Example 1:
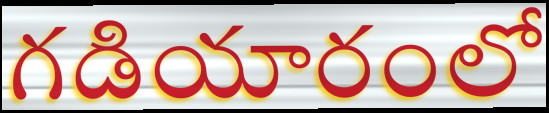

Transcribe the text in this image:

గడియారంలో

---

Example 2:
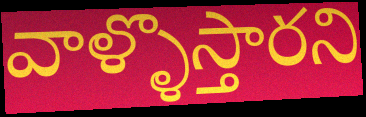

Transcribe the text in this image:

వాళ్ళొస్తారని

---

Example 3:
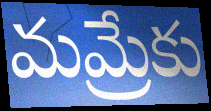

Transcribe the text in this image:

మమ్రేకు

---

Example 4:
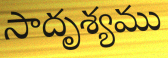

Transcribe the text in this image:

సాదృశ్యము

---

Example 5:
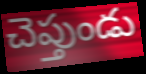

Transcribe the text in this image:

చెప్తుండు